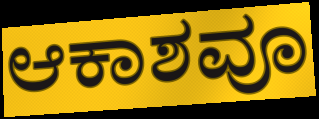
ಆಕಾಶವೂ